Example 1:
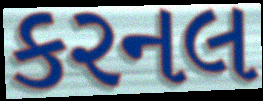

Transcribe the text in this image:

કરનલ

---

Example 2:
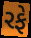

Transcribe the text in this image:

રફે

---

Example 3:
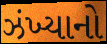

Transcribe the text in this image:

ઝંખ્યાનો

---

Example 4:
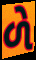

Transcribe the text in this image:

ળે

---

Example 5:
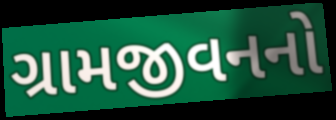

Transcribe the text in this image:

ગ્રામજીવનનો